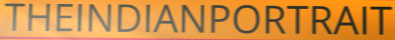
THEINDIANPORTRAIT